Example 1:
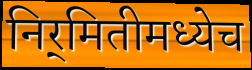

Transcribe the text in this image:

निर्मितीमध्येच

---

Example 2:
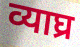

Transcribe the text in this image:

व्याघ्र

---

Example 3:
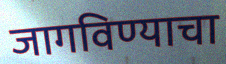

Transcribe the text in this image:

जागविण्याचा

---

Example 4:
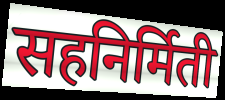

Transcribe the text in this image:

सहनिर्मिती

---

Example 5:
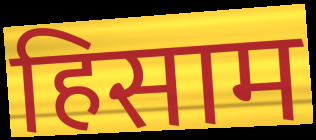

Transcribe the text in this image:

हिसाम